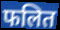
फलित